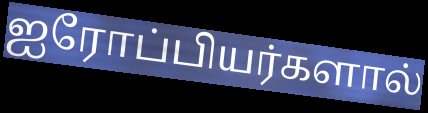
ஐரோப்பியர்களால்